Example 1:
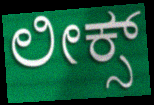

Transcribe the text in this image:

ಲೀಕ್ಸ್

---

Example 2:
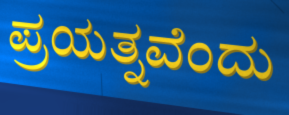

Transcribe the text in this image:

ಪ್ರಯತ್ನವೆಂದು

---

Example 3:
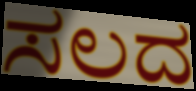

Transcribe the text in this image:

ಸಲದ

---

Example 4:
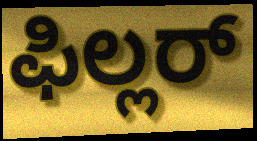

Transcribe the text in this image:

ಫಿಲ್ಲರ್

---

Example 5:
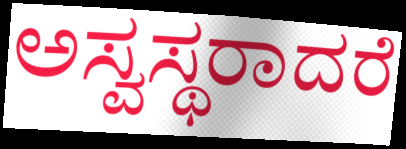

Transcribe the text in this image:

ಅಸ್ವಸ್ಥರಾದರೆ